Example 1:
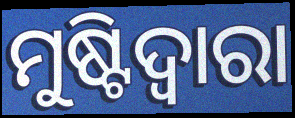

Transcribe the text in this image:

ମୁଷ୍ଟିଦ୍ୱାରା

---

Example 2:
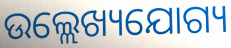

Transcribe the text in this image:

ଉଲ୍ଲେଖ୍ୟଯୋଗ୍ୟ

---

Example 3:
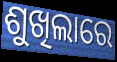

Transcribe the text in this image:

ଶୁଖିଲାରେ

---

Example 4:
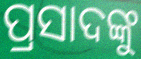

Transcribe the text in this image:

ପ୍ରସାଦଙ୍କୁ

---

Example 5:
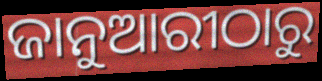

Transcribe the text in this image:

ଜାନୁଆରୀଠାରୁ